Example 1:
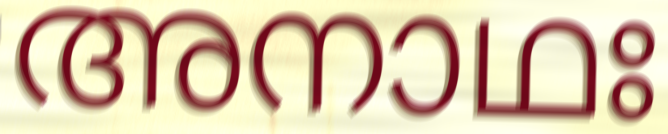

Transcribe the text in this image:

അനാഥഃ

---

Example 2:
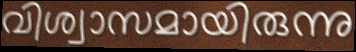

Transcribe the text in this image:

വിശ്വാസമായിരുന്നു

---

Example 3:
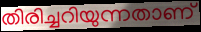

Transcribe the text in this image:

തിരിച്ചറിയുന്നതാണ്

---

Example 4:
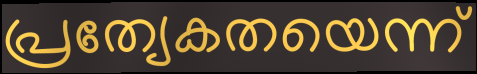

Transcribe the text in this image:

പ്രത്യേകതയെന്ന്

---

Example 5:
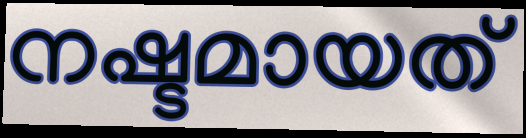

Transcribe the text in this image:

നഷ്ടമായത്